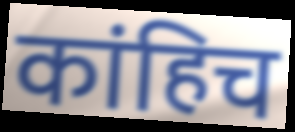
कांहिच